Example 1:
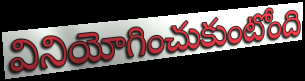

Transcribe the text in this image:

వినియోగించుకుంటోంది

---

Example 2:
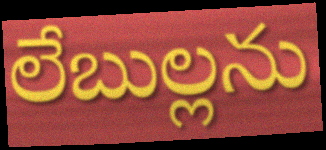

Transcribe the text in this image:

లేబుల్లను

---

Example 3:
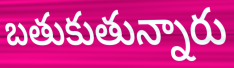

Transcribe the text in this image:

బతుకుతున్నారు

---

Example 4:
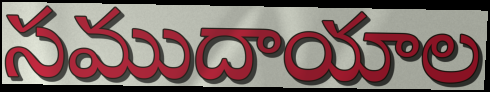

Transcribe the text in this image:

సముదాయాల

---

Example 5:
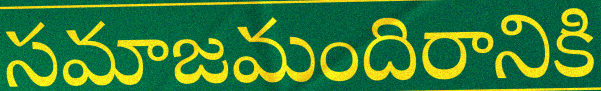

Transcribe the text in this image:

సమాజమందిరానికి